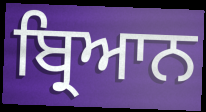
ਬ੍ਰਿਆਨ